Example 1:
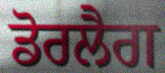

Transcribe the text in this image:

ਡੋਰਲੈਗ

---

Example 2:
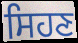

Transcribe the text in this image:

ਸਿਹਣ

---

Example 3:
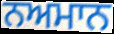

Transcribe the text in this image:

ਨਅਮਾਨ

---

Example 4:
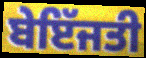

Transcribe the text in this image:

ਬੇਇੱਜਤੀ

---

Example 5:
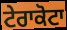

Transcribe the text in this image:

ਟੇਰਾਕੋਟਾ